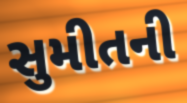
સુમીતની